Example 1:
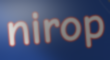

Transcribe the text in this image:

nirop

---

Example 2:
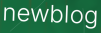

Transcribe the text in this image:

newblog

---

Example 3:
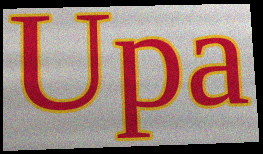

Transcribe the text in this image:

Upa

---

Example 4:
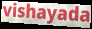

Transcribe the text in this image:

vishayada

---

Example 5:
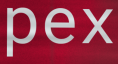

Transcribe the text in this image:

pex